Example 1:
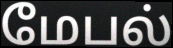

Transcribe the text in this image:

மேபல்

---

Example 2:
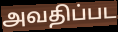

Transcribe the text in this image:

அவதிப்பட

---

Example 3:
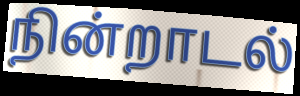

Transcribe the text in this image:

நின்றாடல்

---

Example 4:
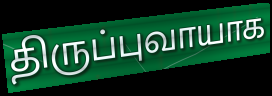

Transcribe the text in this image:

திருப்புவாயாக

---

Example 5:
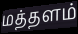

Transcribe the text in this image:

மத்தளம்